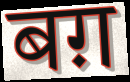
बग़